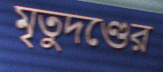
মৃতুদণ্ডের